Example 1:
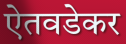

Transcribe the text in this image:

ऐतवडेकर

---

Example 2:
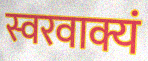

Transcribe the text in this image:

स्वरवाक्यं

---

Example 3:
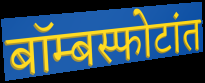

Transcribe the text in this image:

बॉम्बस्फोटांत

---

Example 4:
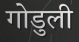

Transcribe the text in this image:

गोडुली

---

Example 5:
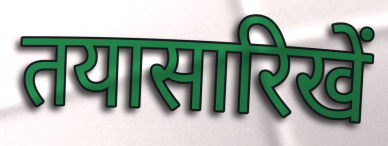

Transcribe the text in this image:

तयासारिखें